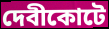
দেবীকোটে